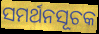
ସମର୍ଥନସୂଚକ